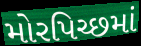
મોરપિચ્છમાં